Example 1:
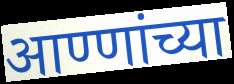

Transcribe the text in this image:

आण्णांच्या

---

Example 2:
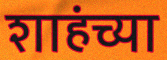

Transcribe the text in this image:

शाहंच्या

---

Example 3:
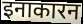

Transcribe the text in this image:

इनाकारन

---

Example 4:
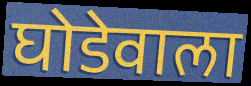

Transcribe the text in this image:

घोडेवाला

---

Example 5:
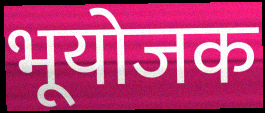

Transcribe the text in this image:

भूयोजक